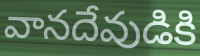
వానదేవుడికి